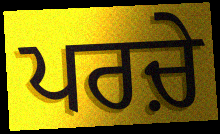
ਪਰਚ਼ੇ